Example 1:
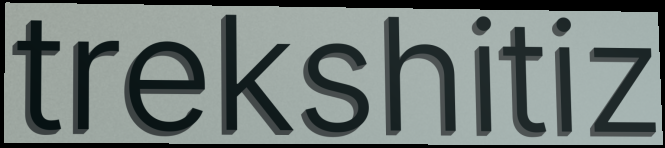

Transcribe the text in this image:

trekshitiz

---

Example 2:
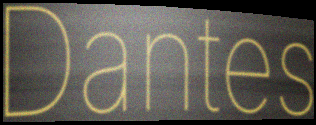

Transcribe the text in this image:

Dantes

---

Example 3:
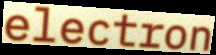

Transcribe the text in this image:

electron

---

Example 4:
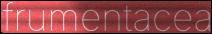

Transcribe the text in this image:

frumentacea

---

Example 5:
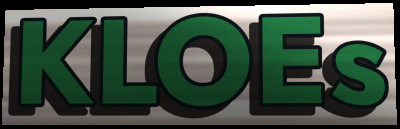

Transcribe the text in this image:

KLOEs